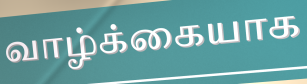
வாழ்க்கையாக